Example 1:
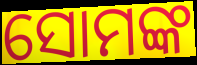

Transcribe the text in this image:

ସୋମଙ୍କ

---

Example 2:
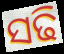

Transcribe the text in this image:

ସଢି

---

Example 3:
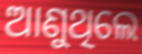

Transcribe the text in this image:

ଆଣୁଥିଲେ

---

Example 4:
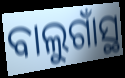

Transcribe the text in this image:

ବାଲୁଗାଁସ୍ଥ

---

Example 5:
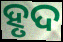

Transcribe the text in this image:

ହୃଦ